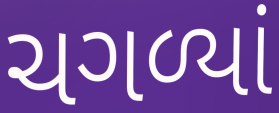
ચગળ્યાં